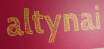
altynai